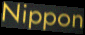
Nippon